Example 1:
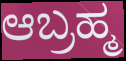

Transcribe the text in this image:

ಆಬ್ರಹ್ಮ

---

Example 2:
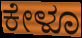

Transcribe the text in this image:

ಕೇಳೂ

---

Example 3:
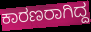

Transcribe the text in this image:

ಕಾರಣರಾಗಿದ್ದ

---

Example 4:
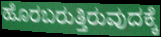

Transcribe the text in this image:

ಹೊರಬರುತ್ತಿರುವುದಕ್ಕೆ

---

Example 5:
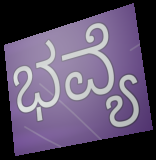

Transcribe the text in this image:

ಭವ್ಯೆ